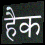
हैक